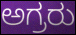
ಅಗ್ರರು